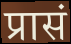
प्रासं